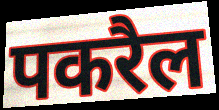
पकरैल